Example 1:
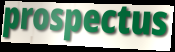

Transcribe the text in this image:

prospectus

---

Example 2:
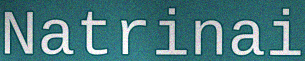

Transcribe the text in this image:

Natrinai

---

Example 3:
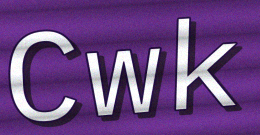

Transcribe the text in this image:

Cwk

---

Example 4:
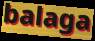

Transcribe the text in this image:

balaga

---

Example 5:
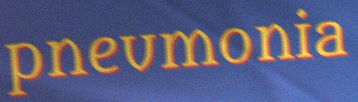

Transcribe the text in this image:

pneumonia